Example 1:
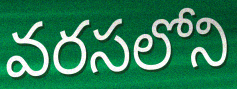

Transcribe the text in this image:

వరసలోని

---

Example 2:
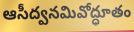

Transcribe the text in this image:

ఆసీద్వనమివోద్ధూతం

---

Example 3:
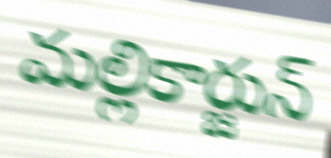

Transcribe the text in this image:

మల్లికార్జున్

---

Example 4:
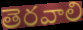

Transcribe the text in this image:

తెరవాలి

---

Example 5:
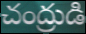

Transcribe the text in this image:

చంద్రుడి